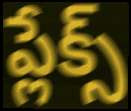
ప్లేక్స్